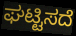
ಘಟ್ಟಿಸದೆ